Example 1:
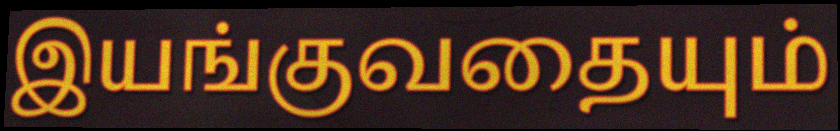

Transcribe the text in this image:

இயங்குவதையும்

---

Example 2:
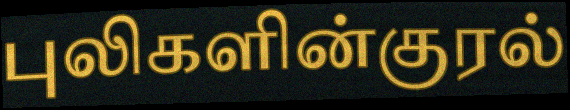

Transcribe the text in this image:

புலிகளின்குரல்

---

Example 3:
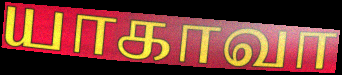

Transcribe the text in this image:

யாகாவா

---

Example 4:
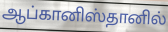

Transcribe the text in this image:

ஆப்கானிஸ்தானில்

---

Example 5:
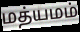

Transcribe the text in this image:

மத்யமம்